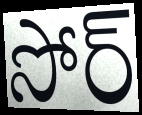
సోర్